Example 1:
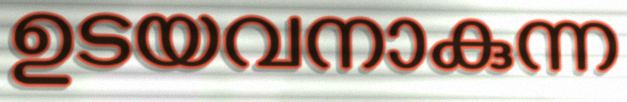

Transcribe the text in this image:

ഉടയവനാകുന്ന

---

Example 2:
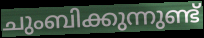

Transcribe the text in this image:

ചുംബിക്കുന്നുണ്ട്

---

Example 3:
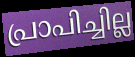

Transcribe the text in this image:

പ്രാപിച്ചില്ല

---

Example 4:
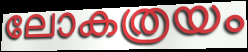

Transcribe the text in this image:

ലോകത്രയം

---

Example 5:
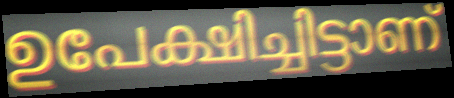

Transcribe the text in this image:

ഉപേക്ഷിച്ചിട്ടാണ്